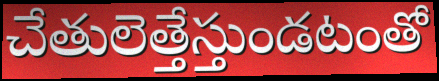
చేతులెత్తేస్తుండటంతో